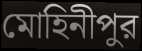
মোহিনীপুর